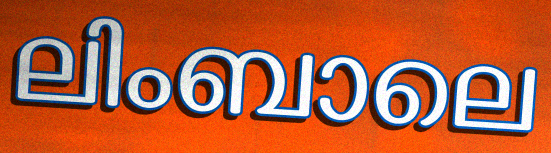
ലിംബാലെ